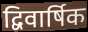
द्विवार्षिक